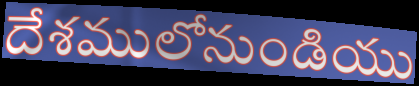
దేశములోనుండియు